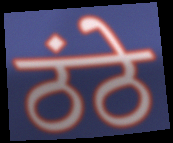
ठंठे